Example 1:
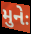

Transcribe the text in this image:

મુનેઃ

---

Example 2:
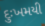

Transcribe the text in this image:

દુઃખમયી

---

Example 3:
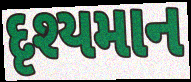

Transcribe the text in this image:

દૃશ્યમાન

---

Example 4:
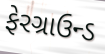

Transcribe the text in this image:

ફેરગ્રાઉન્ડ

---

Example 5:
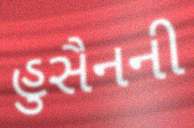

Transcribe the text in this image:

હુસૈનની